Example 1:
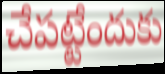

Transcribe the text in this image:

చేపట్టేందుకు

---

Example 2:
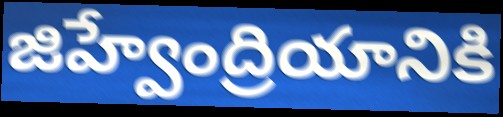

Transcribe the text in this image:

జిహ్వేంద్రియానికి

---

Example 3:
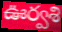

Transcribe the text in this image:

ఊర్వశి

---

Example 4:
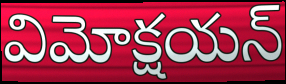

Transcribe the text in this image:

విమోక్షయన్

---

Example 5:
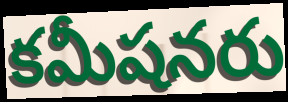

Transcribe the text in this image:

కమీషనరు